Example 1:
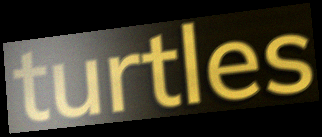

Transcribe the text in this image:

turtles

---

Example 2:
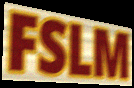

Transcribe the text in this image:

FSLM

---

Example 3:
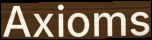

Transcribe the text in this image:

Axioms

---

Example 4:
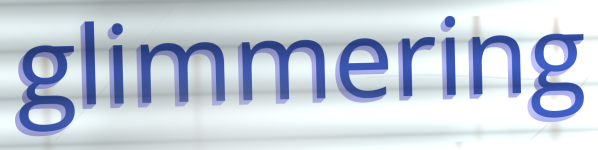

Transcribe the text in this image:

glimmering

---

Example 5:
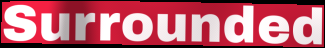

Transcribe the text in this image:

Surrounded